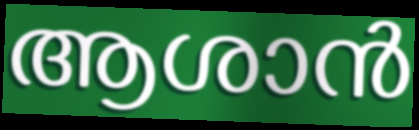
ആശാൻ